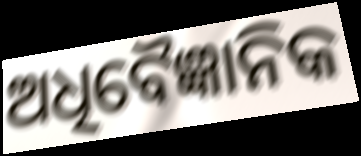
ଅଧିବୈଜ୍ଞାନିକ